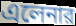
এলেনার